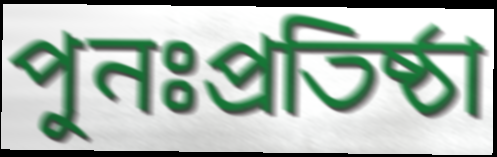
পুনঃপ্রতিষ্ঠা